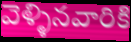
వెళ్ళినవారికి